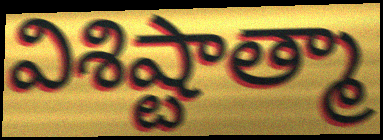
విశిష్టాత్మా